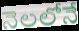
నెలలోనే